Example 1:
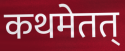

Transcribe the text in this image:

कथमेतत्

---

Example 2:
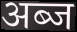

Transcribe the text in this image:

अब्ज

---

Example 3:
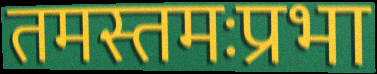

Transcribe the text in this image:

तमस्तमःप्रभा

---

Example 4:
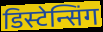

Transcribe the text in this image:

डिस्टेन्सिंग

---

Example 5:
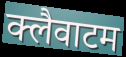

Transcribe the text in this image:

क्लैवाटम